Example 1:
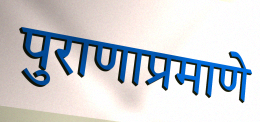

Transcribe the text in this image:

पुराणाप्रमाणे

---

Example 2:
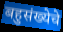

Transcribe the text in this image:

बहुसंख्येचे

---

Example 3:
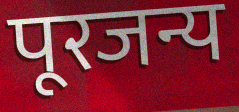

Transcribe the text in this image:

पूरजन्य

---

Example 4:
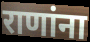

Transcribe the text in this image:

राणांना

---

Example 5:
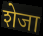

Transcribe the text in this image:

शेजा